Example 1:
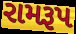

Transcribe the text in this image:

રામરૂપ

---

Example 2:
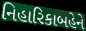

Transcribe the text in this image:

નિહારિકાબહેને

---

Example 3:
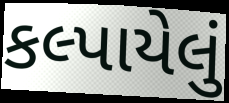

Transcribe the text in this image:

કલ્પાયેલું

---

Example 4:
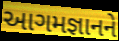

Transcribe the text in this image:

આગમજ્ઞાનને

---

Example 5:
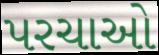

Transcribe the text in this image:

પરચાઓ